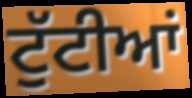
ਟੁੱਟੀਆਂ